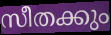
സീതക്കും